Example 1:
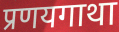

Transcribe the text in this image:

प्रणयगाथा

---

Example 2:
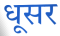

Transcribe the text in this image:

धूसर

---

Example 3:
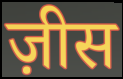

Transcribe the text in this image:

ज़ीस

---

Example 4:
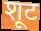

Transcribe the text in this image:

शूट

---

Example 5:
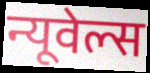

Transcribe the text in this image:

न्यूवेल्स